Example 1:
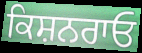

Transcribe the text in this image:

ਕਿਸ਼ਨਰਾਓ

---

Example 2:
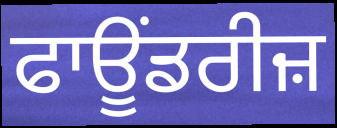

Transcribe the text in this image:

ਫਾਊਂਡਰੀਜ਼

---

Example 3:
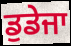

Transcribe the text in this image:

ਡੁਡੇਜਾ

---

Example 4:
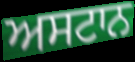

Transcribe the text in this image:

ਅਸਟਾਨ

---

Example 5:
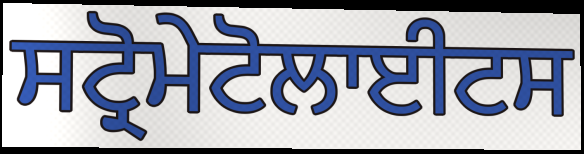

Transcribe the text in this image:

ਸਟ੍ਰੋਮੇਟੋਲਾਈਟਸ